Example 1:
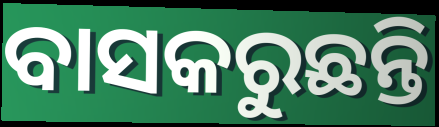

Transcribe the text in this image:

ବାସକରୁଛନ୍ତି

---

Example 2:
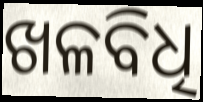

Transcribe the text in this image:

ଖଳବିଧି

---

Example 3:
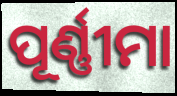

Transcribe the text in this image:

ପୂର୍ଣ୍ଣୀମା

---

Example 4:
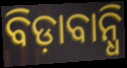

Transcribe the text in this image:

ବିଡ଼ାବାନ୍ଧି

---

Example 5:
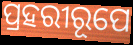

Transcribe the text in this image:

ପ୍ରହରୀରୂପେ